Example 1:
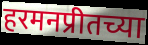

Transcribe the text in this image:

हरमनप्रीतच्या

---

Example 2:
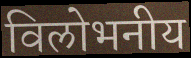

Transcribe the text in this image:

विलोभनीय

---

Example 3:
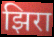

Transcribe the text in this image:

झिरा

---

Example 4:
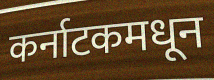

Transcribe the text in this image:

कर्नाटकमधून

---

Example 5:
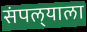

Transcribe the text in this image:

संपल्याला